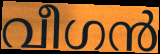
വീഗൻ